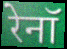
रेनॉ